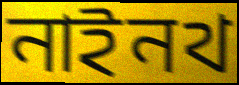
নাইনথ